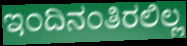
ಇಂದಿನಂತಿರಲಿಲ್ಲ